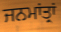
ਜਨਮਾਂਤ੍ਰਾਂ